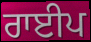
ਰਾਈਪ